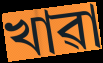
খাৱা